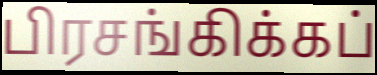
பிரசங்கிக்கப்